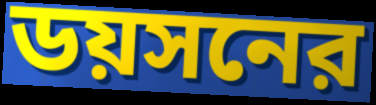
ডয়সনের